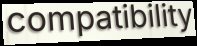
compatibility